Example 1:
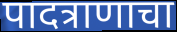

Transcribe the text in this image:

पादत्राणाचा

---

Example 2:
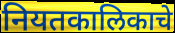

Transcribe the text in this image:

नियतकालिकाचे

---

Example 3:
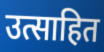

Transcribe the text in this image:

उत्साहित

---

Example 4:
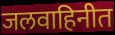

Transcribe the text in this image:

जलवाहिनीत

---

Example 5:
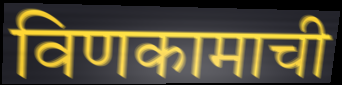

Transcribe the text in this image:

विणकामाची